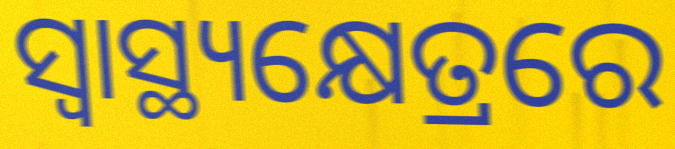
ସ୍ୱାସ୍ଥ୍ୟକ୍ଷେତ୍ରରେ